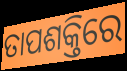
ତାପଶକ୍ତିରେ